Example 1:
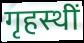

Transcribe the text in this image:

गृहस्थीं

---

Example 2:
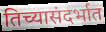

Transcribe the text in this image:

तिच्यासंदर्भात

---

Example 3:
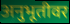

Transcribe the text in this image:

अनुभूतीवर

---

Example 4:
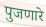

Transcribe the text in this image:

पुजणारे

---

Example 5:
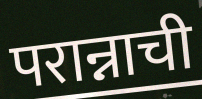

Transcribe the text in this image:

परान्नाची